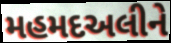
મહમદઅલીને